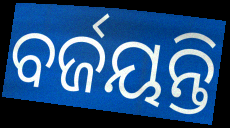
ବର୍ଜୟନ୍ତି